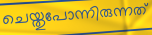
ചെയ്തുപോന്നിരുന്നത്